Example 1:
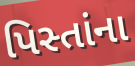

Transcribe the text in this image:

પિસ્તાંના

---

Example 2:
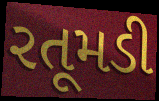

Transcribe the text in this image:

રતૂમડી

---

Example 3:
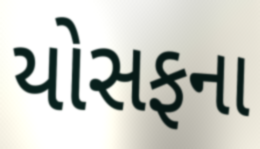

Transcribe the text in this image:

યોસફના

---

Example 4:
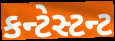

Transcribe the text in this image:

કન્ટેસ્ટન્ટ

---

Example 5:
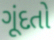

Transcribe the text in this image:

ગૂંદતો